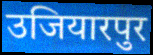
उजियारपुर